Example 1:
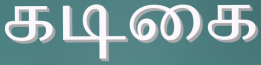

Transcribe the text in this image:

கடிகை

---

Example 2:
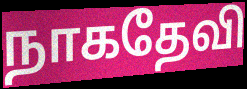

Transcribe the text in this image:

நாகதேவி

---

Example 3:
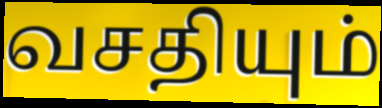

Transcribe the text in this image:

வசதியும்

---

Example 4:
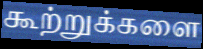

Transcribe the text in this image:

கூற்றுக்களை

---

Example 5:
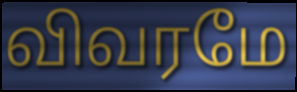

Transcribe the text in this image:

விவரமே